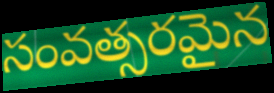
సంవత్సరమైన